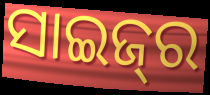
ସାଇଜ୍‌ର